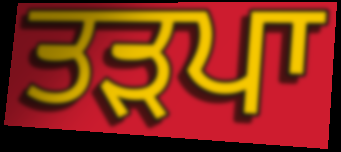
ਤੜਪਾ